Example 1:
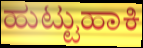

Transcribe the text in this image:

ಹುಟ್ಟುಹಾಕಿ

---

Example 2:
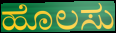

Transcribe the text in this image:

ಹೊಲಸು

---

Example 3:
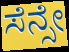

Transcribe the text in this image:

ಸೆನ್ಸೇ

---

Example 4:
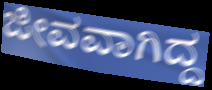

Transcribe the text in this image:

ಜೀವವಾಗಿದ್ದ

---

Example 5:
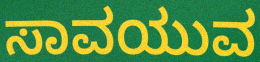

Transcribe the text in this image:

ಸಾವಯುವ